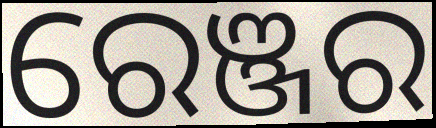
ରେଞ୍ଜର